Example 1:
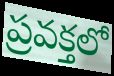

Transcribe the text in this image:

ప్రవక్తలో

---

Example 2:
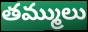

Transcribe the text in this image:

తమ్ములు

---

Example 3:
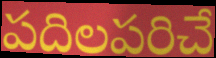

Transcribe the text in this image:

పదిలపరిచే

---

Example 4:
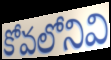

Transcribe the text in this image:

కోవలోనివి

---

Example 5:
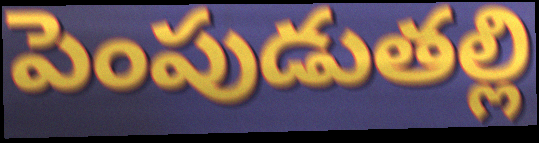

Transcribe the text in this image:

పెంపుడుతల్లి